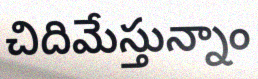
చిదిమేస్తున్నాం